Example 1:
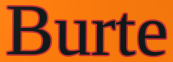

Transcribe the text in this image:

Burte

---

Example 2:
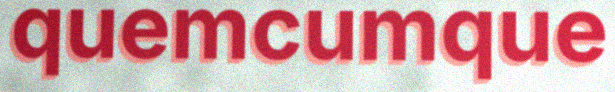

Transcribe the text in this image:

quemcumque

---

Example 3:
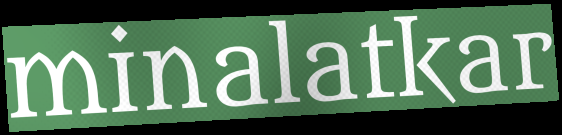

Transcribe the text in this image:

minalatkar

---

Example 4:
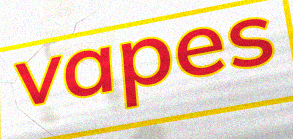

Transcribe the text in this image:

vapes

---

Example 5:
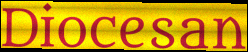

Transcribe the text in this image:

Diocesan